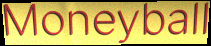
Moneyball